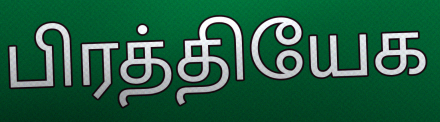
பிரத்தியேக